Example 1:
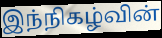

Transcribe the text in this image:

இந்நிகழ்வின்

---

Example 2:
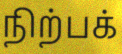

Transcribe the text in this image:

நிற்பக்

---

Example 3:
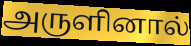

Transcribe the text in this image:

அருளினால்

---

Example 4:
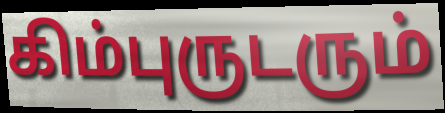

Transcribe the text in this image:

கிம்புருடரும்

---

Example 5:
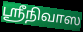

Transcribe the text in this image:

ஸ்ரீநிவாஸ